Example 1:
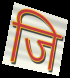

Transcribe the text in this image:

जि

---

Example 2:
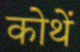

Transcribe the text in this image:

कोथें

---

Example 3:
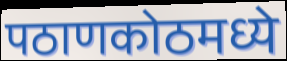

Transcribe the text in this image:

पठाणकोठमध्ये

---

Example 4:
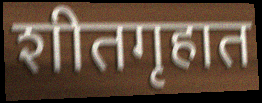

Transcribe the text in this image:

शीतगृहात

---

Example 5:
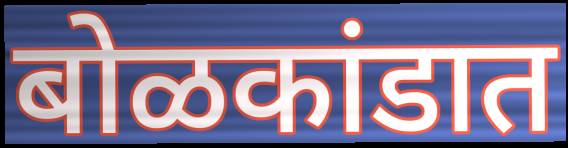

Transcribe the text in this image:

बोळकांडात